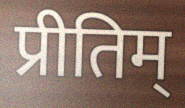
प्रीतिम्